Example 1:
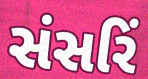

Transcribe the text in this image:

સંસરિં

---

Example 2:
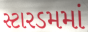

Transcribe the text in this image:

સ્ટારડમમાં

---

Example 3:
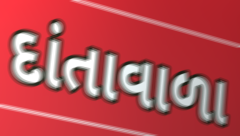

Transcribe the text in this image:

દાંતાવાળા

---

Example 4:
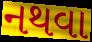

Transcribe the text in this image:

નથવા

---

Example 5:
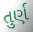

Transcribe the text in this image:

તુર્ણ